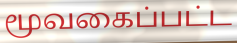
மூவகைப்பட்ட